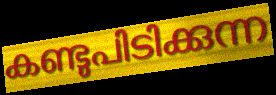
കണ്ടുപിടിക്കുന്ന